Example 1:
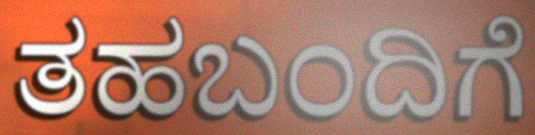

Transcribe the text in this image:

ತಹಬಂದಿಗೆ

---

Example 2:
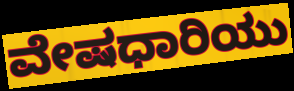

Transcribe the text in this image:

ವೇಷಧಾರಿಯು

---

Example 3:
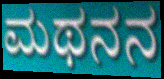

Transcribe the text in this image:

ಮಥನನ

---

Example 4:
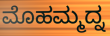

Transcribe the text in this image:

ಮೊಹಮ್ಮದ್ನ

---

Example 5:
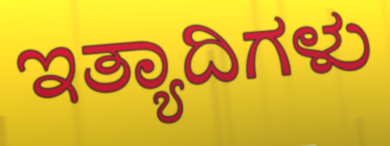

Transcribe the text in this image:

ಇತ್ಯಾದಿಗಳು